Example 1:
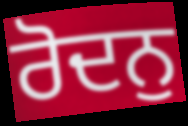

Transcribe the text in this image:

ਰੋਦਨੁ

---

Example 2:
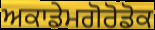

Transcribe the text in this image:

ਅਕਾਡੇਮਗੋਰੋਡੋਕ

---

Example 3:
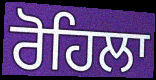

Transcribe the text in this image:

ਰੋਹਿਲਾ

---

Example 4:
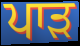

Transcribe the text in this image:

ਪਾੜ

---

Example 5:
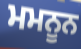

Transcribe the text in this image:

ਮਮਨੂਨ